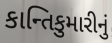
કાન્તિકુમારીનું